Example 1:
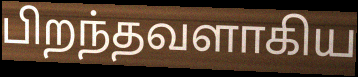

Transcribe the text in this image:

பிறந்தவளாகிய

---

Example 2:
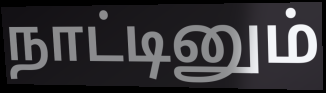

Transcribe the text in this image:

நாட்டினும்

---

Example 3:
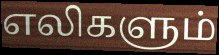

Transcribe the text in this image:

எலிகளும்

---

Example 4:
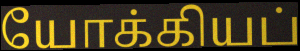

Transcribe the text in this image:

யோக்கியப்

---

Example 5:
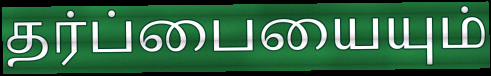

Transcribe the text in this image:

தர்ப்பையையும்